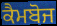
ਕੈਮਬੋਜ